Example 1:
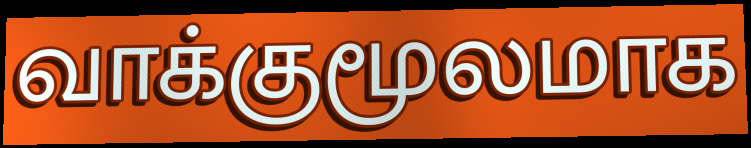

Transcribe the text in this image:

வாக்குமூலமாக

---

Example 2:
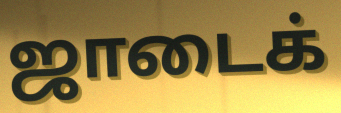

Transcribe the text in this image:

ஜாடைக்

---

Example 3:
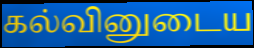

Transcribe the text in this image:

கல்வினுடைய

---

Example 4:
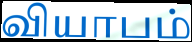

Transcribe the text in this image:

வியாபம்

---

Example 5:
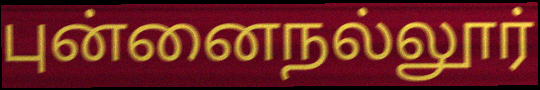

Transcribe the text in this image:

புன்னைநல்லூர்